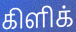
கிளிக்